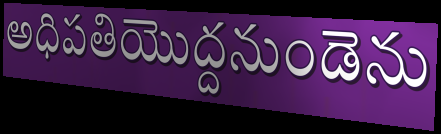
అధిపతియొద్దనుండెను